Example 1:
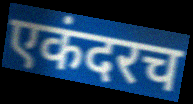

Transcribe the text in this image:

एकंदरच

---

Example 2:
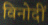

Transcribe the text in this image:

विनोदीं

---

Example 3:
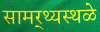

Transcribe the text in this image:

सामर्थ्यस्थळे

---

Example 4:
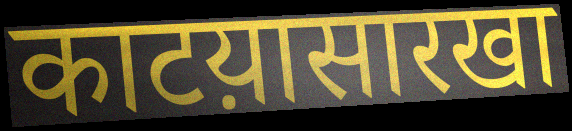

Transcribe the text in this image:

काटय़ासारखा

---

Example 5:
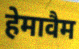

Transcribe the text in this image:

हेमावैम